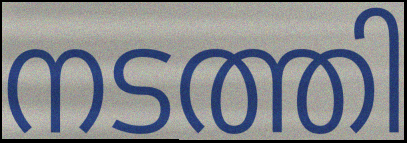
നടത്തി